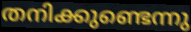
തനിക്കുണ്ടെന്നു